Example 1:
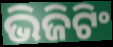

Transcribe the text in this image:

ଭିଜିଟିଂ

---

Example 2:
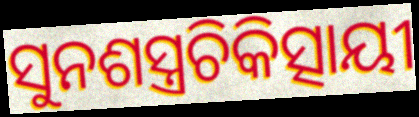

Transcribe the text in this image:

ସୁନଶସ୍ତ୍ରଚିକିତ୍ସାୟୀ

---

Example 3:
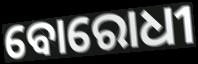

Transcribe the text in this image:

ବୋରୋଧୀ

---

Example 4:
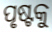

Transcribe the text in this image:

ପୃଷ୍ଟକୁ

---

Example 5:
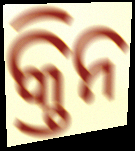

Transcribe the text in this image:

କ୍ତିନ